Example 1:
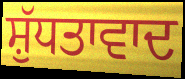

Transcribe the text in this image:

ਸ਼ੁੱਧਤਾਵਾਦ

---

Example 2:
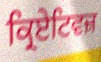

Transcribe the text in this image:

ਕ੍ਰਿਏਟਿਵਜ਼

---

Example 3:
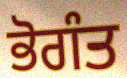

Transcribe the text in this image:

ਭੋਗੰਤ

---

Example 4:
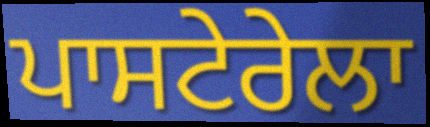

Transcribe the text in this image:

ਪਾਸਟੇਰੇਲਾ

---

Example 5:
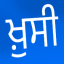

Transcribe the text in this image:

ਖ਼ੁਸੀ